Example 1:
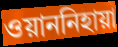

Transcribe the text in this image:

ওয়াননিহায়া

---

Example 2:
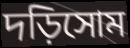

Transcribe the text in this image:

দড়িসোম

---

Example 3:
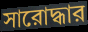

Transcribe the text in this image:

সারোদ্ধার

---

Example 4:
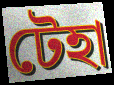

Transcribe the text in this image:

টেহা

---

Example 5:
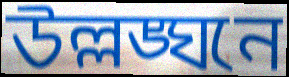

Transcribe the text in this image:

উল্লঙ্ঘনে